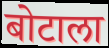
बोटाला